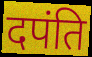
दपंति